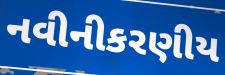
નવીનીકરણીય